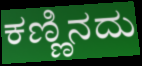
ಕಣ್ಣಿನದು